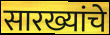
सारख्यांचे